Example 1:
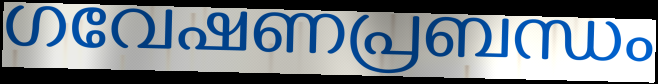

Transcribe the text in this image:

ഗവേഷണപ്രബന്ധം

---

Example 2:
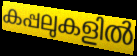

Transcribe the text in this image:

കപ്പലുകളിൽ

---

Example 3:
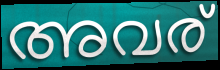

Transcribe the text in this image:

അവര്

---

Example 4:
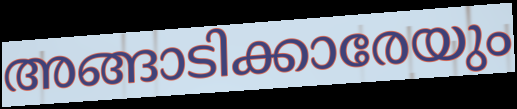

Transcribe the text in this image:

അങ്ങാടിക്കാരേയും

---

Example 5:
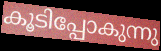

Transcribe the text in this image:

കൂടിപ്പോകുന്നു